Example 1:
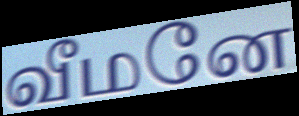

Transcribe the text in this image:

வீமனே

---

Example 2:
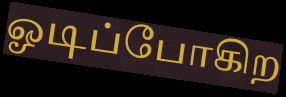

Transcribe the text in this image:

ஓடிப்போகிற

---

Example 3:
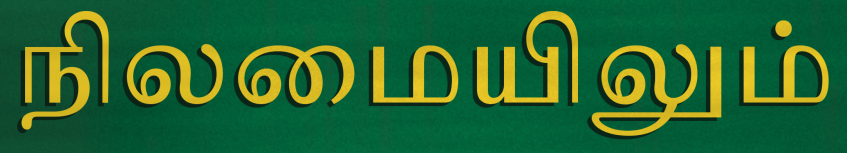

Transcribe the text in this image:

நிலமையிலும்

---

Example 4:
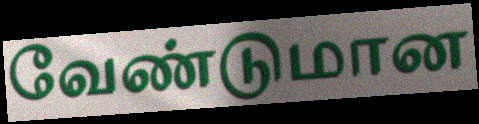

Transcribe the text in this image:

வேண்டுமான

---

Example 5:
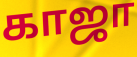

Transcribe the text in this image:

காஜா